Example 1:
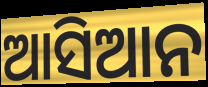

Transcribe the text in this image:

ଆସିଆନ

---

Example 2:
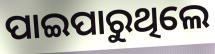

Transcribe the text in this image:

ପାଇପାରୁଥିଲେ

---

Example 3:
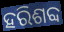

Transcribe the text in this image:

ହରିଶବ୍ଦ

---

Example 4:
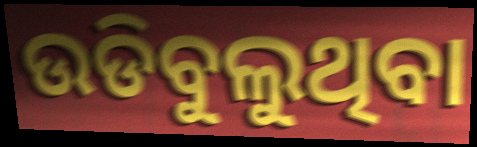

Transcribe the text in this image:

ଉଡିବୁଲୁଥିବା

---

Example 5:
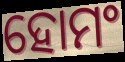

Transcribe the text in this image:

ହୋମଂ